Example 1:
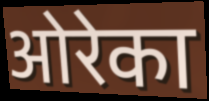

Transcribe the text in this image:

ओरेका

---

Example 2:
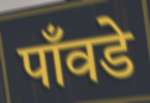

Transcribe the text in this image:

पाँवडे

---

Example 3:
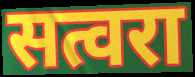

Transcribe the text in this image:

सत्वरा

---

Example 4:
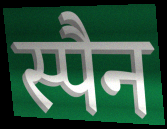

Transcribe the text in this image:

स्पैन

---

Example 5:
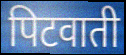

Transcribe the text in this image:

पिटवाती